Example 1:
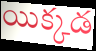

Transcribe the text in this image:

యిక్కడ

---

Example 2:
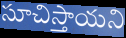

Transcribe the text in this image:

సూచిస్తాయని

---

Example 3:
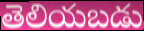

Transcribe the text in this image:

తెలియబడు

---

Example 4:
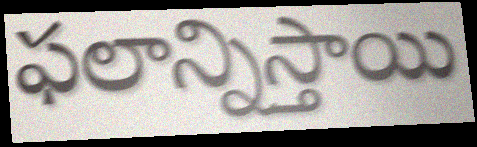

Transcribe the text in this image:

ఫలాన్నిస్తాయి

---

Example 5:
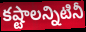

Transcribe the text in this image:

కష్టాలన్నిటినీ